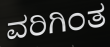
ವರಿಗಿಂತ